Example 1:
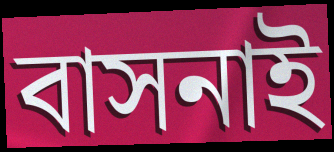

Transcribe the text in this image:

বাসনাই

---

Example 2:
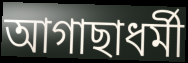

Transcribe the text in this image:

আগাছাধর্মী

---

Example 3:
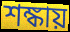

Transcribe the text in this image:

শঙ্কায়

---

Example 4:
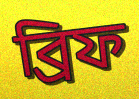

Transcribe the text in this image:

ব্রিফ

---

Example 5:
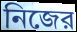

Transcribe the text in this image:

নিজের